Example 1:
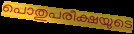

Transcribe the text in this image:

പൊതുപരീക്ഷയുടെ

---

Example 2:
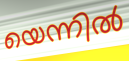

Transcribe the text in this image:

യെന്നിൽ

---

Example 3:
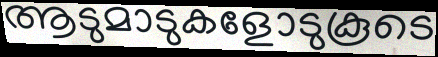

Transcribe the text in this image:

ആടുമാടുകളോടുകൂടെ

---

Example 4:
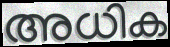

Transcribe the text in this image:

അധിക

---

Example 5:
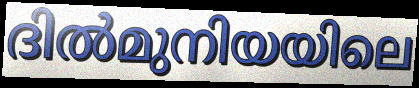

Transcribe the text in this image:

ദിൽമുനിയയിലെ